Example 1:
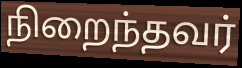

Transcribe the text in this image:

நிறைந்தவர்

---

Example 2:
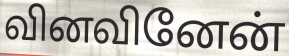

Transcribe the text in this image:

வினவினேன்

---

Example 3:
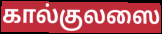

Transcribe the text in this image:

கால்குலஸை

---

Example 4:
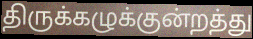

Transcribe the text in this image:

திருக்கழுக்குன்றத்து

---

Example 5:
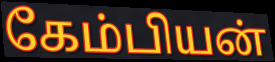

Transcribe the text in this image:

கேம்பியன்